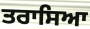
ਤਰਾਸਿਆ